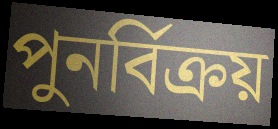
পুনর্বিক্রয়